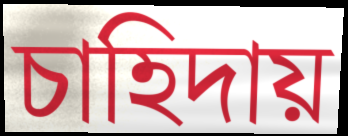
চাহিদায়